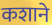
कशाने